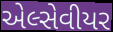
એલ્સેવીયર